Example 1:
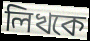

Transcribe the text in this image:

লিখকে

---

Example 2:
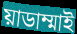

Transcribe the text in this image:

য়াডাম্মাই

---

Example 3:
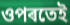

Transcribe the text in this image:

ওপৰতেই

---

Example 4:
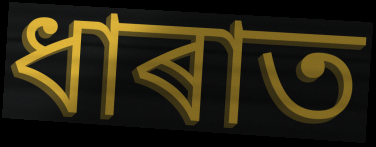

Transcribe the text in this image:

ধাৰাত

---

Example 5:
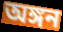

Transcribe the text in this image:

অঙ্গন